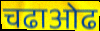
चढाओढ